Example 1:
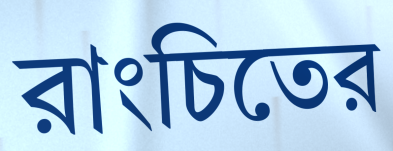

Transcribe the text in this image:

রাংচিতের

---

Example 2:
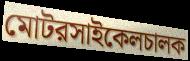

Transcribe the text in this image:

মোটরসাইকেলচালক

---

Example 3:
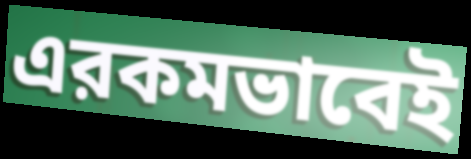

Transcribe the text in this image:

এরকমভাবেই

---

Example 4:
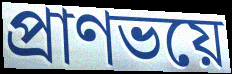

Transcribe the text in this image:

প্রাণভয়ে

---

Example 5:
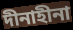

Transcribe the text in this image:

দীনাহীনা